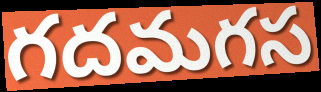
గదమగస